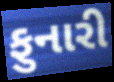
ફુનારી